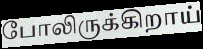
போலிருக்கிறாய்